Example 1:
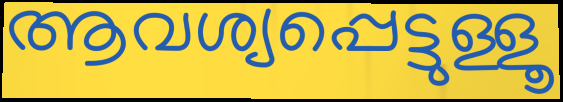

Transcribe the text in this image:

ആവശ്യപ്പെട്ടുള്ളൂ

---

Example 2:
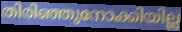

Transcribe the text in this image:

തിരിഞ്ഞുനോക്കിയില്ല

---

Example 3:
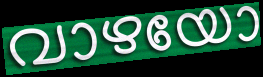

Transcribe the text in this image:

വാഴയോ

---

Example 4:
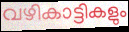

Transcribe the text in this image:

വഴികാട്ടികളും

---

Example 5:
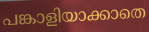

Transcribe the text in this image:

പങ്കാളിയാക്കാതെ